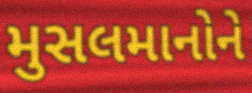
મુસલમાનોને